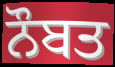
ਨੌਬਤ